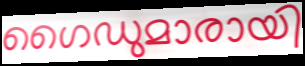
ഗൈഡുമാരായി